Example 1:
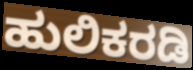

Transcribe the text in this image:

ಹುಲಿಕರಡಿ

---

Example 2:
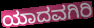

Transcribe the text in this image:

ಯಾದವಗಿರಿ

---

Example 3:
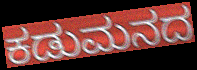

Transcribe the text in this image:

ಕಡುಮನದ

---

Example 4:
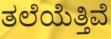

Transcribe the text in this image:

ತಲೆಯೆತ್ತಿವೆ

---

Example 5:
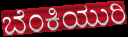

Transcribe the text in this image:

ಬೆಂಕಿಯುರಿ